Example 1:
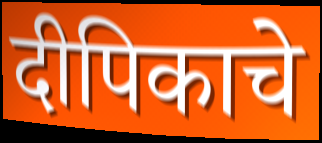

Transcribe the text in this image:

दीपिकाचे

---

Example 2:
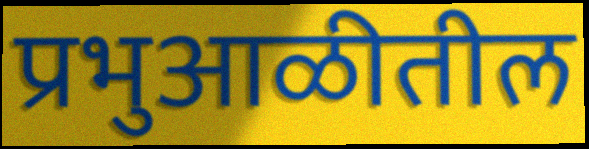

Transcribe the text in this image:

प्रभुआळीतील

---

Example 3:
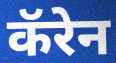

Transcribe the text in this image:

कॅरेन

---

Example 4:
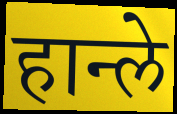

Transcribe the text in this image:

हान्ले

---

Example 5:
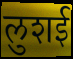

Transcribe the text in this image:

लुशई